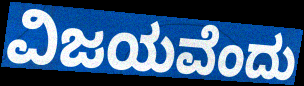
ವಿಜಯವೆಂದು